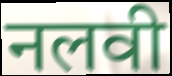
नलवी